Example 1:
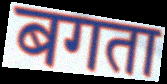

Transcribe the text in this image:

बगता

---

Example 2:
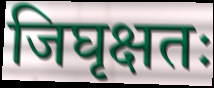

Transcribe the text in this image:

जिघृक्षतः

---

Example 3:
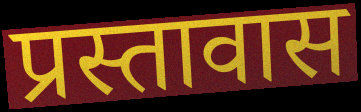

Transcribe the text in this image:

प्रस्तावास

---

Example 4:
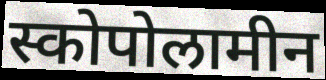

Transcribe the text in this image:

स्कोपोलामीन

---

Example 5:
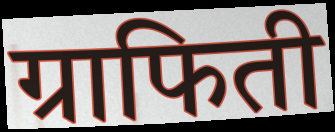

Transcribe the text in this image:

ग्राफिती